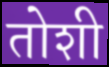
तोशी